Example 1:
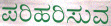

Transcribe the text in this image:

ಪರಿಹರಿಸುವ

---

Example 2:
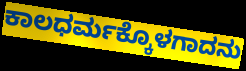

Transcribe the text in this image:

ಕಾಲಧರ್ಮಕ್ಕೊಳಗಾದನು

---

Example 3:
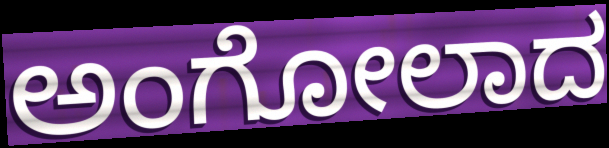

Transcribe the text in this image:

ಅಂಗೋಲಾದ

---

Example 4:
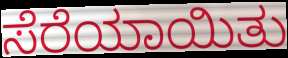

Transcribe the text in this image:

ಸೆರೆಯಾಯಿತು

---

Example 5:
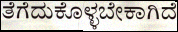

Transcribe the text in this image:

ತೆಗೆದುಕೊಳ್ಳಬೇಕಾಗಿದೆ